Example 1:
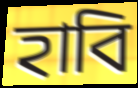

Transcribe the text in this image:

হাবি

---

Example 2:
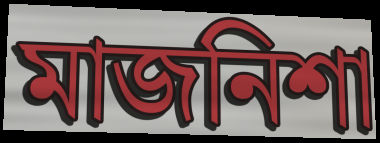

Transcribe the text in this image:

মাজনিশা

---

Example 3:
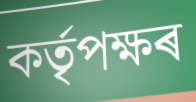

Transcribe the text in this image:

কৰ্তৃপক্ষৰ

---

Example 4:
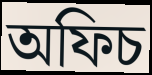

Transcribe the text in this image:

অফিচ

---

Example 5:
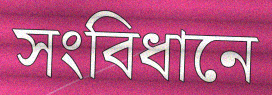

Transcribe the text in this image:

সংবিধানে